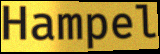
Hampel